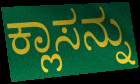
ಕ್ಲಾಸನ್ನು